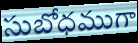
సుబోధముగా